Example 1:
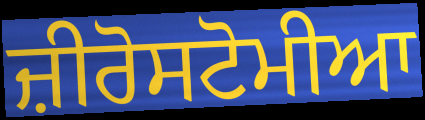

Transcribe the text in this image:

ਜ਼ੀਰੋਸਟੋਮੀਆ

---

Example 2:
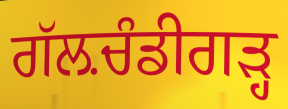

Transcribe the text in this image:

ਗੱਲ਼ਚੰਡੀਗੜ੍ਹ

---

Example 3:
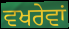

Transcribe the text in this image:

ਵਖਰੇਵਾਂ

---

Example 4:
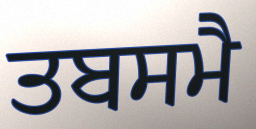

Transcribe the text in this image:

ਤਬਸਮੈ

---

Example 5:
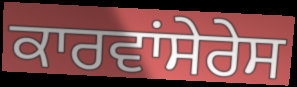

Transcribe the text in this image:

ਕਾਰਵਾਂਸੇਰੇਸ